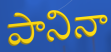
పానినా